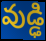
వుడ్ఢి